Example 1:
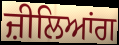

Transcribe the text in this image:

ਜ਼ੀਲਿਆਂਗ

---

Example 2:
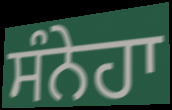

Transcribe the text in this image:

ਸੰਨੇਹਾ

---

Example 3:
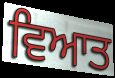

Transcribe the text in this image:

ਵਿਆਤ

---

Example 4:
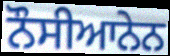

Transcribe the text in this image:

ਨੌਸੀਆਨੇਨ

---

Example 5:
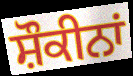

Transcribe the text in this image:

ਸ਼ੌਕੀਨਾਂ